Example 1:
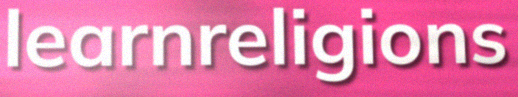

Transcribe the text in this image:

learnreligions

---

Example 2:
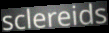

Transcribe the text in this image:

sclereids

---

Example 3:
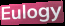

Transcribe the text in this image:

Eulogy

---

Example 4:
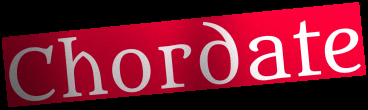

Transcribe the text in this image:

Chordate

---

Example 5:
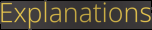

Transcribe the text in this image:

Explanations